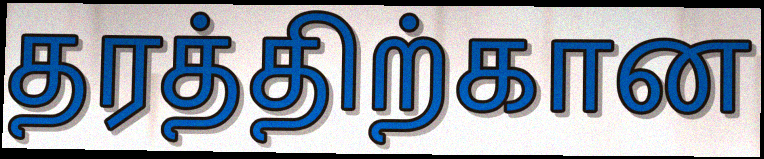
தரத்திற்கான